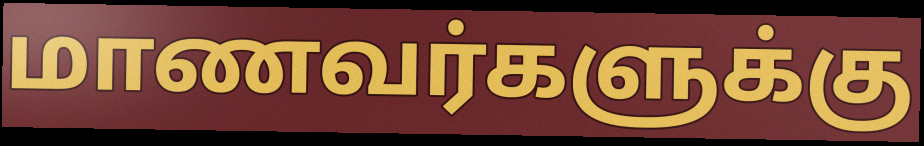
மாணவர்களுக்கு